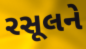
રસૂલને